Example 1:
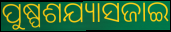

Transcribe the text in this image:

ପୁଷ୍ପଶଯ୍ୟାସଜାଇ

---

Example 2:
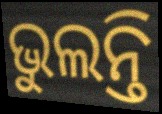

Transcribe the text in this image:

ଭୁଲନ୍ତି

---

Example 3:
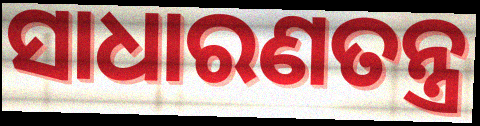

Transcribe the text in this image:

ସାଧାରଣତନ୍ତ୍ର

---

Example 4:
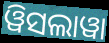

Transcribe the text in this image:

ୱିସଲାୱା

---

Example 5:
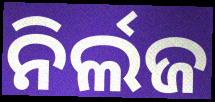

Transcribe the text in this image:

ନିର୍ଲଜ